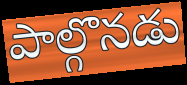
పాల్గొనడు